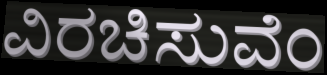
ವಿರಚಿಸುವೆಂ